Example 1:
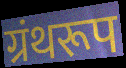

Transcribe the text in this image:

ग्रंथरूप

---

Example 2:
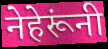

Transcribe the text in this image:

नेहेरूंनी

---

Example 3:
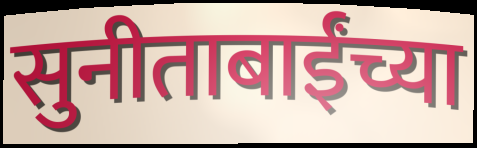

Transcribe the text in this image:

सुनीताबाईंच्या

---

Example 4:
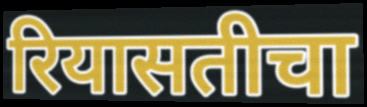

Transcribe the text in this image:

रियासतीचा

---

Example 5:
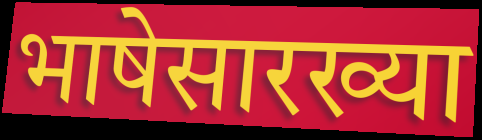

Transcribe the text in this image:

भाषेसारख्या